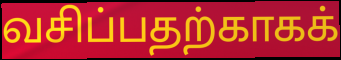
வசிப்பதற்காகக்